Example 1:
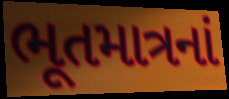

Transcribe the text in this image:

ભૂતમાત્રનાં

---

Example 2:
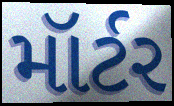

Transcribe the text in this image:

મૉર્ટર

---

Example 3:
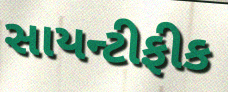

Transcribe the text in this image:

સાયન્ટીફીક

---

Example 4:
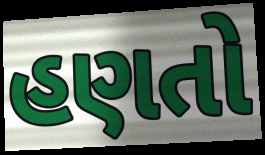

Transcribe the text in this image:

હણતો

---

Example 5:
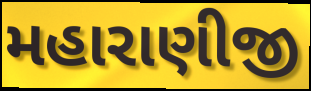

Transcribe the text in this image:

મહારાણીજી